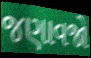
જણાવજો